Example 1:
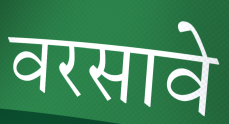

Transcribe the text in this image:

वरसावे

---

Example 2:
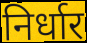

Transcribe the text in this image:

निर्धार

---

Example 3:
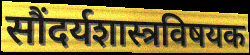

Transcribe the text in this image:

सौंदर्यशास्त्रविषयक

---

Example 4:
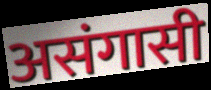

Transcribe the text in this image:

असंगासी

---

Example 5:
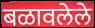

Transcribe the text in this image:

बळावलेले